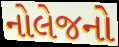
નોલેજનો